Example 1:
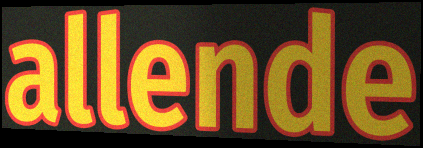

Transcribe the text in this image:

allende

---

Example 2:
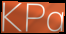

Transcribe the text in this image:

KPa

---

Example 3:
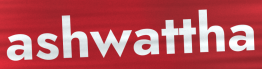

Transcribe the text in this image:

ashwattha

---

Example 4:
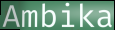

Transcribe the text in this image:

Ambika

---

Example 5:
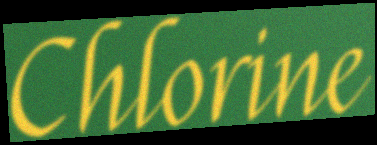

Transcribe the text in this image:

Chlorine